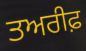
ਤਅਰੀਫ਼